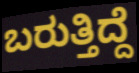
ಬರುತ್ತಿದ್ದೆ